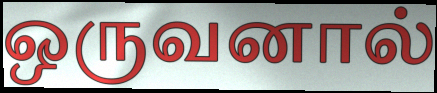
ஒருவனால்